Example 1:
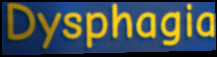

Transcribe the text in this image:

Dysphagia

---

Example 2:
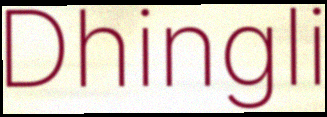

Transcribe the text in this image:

Dhingli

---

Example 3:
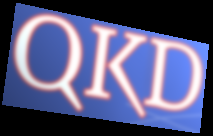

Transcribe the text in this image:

QKD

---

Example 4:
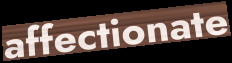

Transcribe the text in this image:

affectionate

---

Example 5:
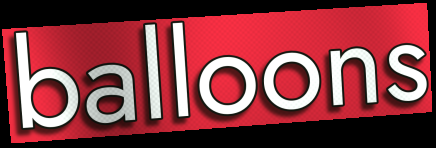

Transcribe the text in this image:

balloons